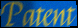
Patent